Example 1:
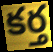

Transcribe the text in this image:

కర్త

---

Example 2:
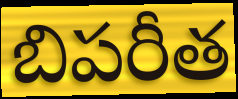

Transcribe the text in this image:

బిపరీత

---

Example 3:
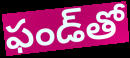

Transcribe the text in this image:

ఫండ్‌తో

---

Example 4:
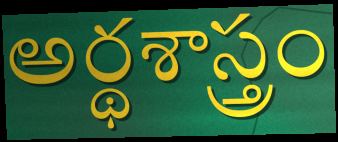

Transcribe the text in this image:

అర్థశాస్త్రం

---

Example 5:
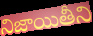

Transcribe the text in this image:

నిజాయితీని